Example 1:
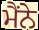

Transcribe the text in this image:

ਮੈਂਨੇ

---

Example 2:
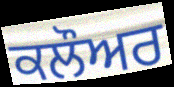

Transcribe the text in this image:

ਕਲੌਅਰ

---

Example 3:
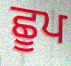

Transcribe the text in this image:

ਛੂਪ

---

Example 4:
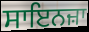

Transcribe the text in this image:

ਸਾਇਨਜ਼ਾ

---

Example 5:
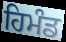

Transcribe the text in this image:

ਹਿਮੰਡ